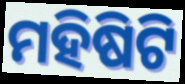
ମହିଷିଟି